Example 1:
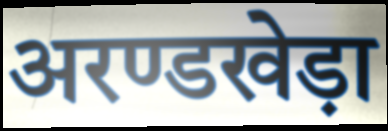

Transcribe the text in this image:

अरण्डखेड़ा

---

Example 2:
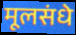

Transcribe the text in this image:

मूलसंधे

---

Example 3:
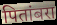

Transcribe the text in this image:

पितांबरा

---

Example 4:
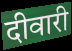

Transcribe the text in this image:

दीवारी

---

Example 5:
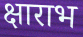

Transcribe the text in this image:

क्षाराभ